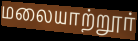
மலையாற்றூர்